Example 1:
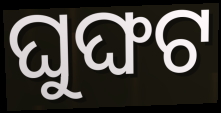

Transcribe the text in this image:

ଘୁଙ୍ଘଟ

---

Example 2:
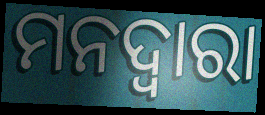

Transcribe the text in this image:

ମନଦ୍ଵାରା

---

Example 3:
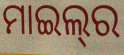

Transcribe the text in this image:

ମାଇଲ୍‍ର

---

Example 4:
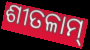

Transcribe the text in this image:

ଶୀତଳାମ୍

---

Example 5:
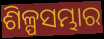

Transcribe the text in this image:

ଶିଳ୍ପସମ୍ଭାର